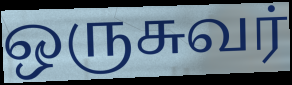
ஒருசுவர்